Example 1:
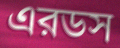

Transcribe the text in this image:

এরডস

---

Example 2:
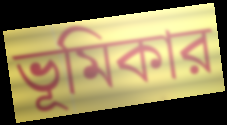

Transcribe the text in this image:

ভূমিকার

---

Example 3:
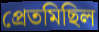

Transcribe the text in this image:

প্রেতমিছিল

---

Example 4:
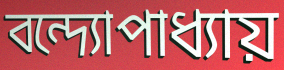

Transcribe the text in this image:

বন্দ্যোপাধ্যায়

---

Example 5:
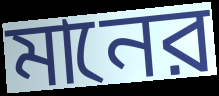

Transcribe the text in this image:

মানের